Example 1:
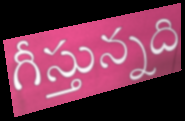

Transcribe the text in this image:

గీస్తున్నది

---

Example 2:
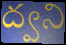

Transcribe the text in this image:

ద్వని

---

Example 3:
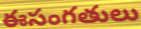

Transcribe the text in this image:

ఈసంగతులు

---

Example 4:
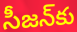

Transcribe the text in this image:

సీజన్‌కు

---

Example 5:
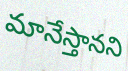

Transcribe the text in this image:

మానేస్తానని